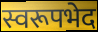
स्वरूपभेद